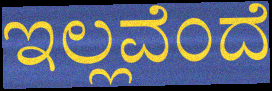
ಇಲ್ಲವೆಂದೆ